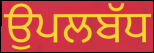
ਉਪਲਬੱਧ